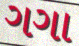
ગગા